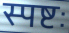
स्पष्टः